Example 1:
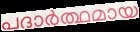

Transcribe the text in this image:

പദാർത്ഥമായ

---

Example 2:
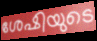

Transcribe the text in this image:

ശേഷിയുടെ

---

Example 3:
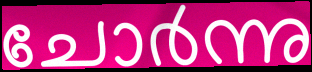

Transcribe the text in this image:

ചോർന്നു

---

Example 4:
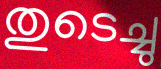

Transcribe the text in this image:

തുടെച്ചു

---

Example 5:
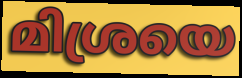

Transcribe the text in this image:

മിശ്രയെ